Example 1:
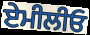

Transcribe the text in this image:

ਏਮੀਲੀਓ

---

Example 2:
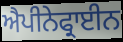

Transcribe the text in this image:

ਐਪੀਨੇਫ੍ਰਾਈਨ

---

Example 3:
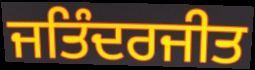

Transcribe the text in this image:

ਜਤਿੰਦਰਜੀਤ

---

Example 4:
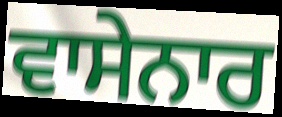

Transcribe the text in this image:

ਵਾਸੇਨਾਰ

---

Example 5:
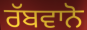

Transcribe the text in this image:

ਰੱਬਵਾਨੋ